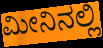
ಮೀನಿನಲ್ಲಿ